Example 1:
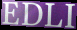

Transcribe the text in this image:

EDLI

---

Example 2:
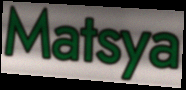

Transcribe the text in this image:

Matsya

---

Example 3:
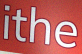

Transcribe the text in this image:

ithe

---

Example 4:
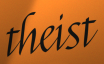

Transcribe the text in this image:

theist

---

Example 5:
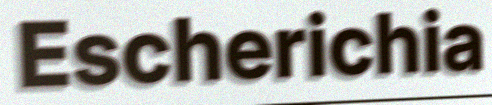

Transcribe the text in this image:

Escherichia